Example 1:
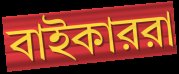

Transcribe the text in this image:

বাইকাররা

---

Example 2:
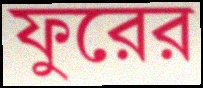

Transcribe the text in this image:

ফুরের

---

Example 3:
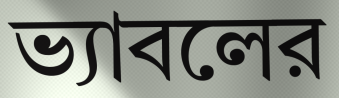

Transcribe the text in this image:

ভ্যাবলের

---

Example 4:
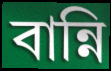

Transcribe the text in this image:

বান্নি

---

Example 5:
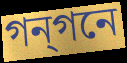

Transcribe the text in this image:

গন্গনে